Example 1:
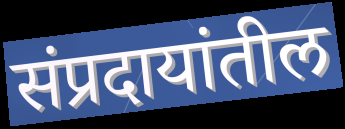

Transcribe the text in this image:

संप्रदायांतील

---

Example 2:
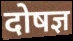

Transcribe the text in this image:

दोषज्ञ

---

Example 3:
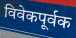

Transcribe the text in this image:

विवेकपूर्वक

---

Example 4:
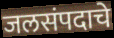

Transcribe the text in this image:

जलसंपदाचे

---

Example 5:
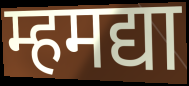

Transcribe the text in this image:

म्हमद्या